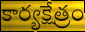
కార్యక్షేత్రం